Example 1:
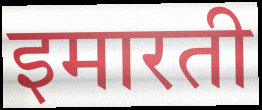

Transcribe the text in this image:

इमारती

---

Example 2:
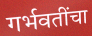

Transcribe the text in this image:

गर्भवतींचा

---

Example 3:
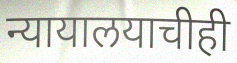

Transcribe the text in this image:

न्यायालयाचीही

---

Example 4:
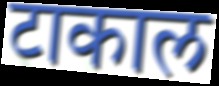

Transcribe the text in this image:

टाकाल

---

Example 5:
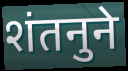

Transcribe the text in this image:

शंतनुने